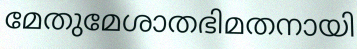
മേതുമേശാതഭിമതനായി